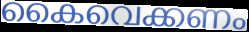
കൈവെക്കണം